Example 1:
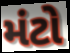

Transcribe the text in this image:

મંટો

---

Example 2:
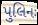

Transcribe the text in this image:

પુલિનઃ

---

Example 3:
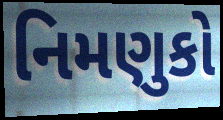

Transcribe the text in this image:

નિમણુકો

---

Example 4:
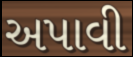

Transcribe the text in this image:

અપાવી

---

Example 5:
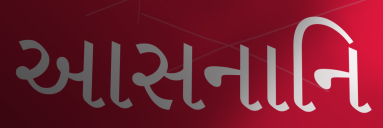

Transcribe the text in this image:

આસનાનિ